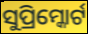
ସୁପ୍ରିମ୍କୋର୍ଟ